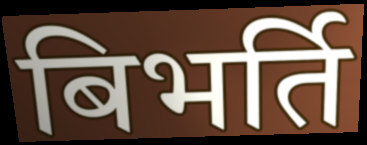
बिभर्ति